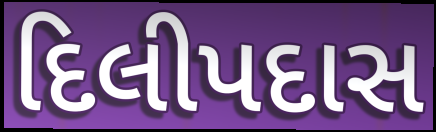
દિલીપદાસ